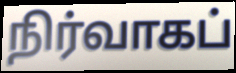
நிர்வாகப்